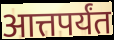
आत्तपर्यंत